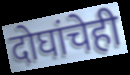
दोघांचेही